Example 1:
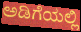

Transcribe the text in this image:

ಅಡಿಗೆಯಲ್ಲಿ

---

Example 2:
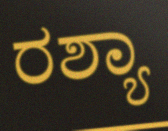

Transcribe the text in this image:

ರಶ್ಯಾ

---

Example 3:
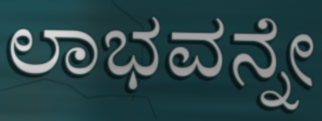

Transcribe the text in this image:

ಲಾಭವನ್ನೇ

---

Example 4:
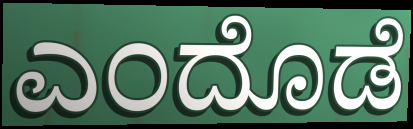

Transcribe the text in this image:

ಎಂದೊಡೆ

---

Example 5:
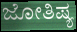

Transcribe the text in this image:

ಜೋತಿಷ್ಯ